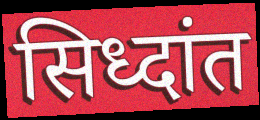
सिध्दांत